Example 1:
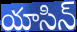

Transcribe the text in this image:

యాసిన్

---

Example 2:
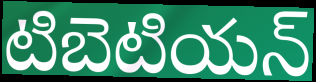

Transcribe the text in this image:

టిబెటియన్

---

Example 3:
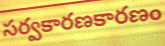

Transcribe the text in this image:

సర్వకారణకారణం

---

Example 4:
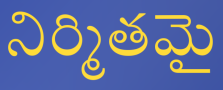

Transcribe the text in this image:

నిర్మితమై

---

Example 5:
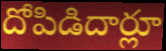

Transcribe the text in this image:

దోపిడిదార్లూ